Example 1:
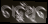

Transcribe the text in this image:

ଚାହୁଁଥିବ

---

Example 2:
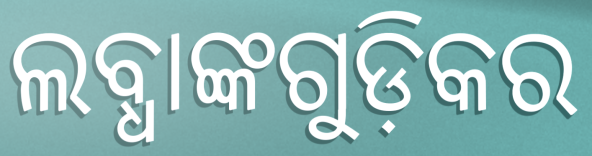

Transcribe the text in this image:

ଲବ୍ଧାଙ୍କଗୁଡ଼ିକର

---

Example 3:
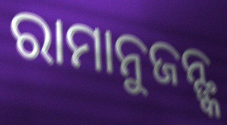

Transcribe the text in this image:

ରାମାନୁଜନ୍ଙ୍କ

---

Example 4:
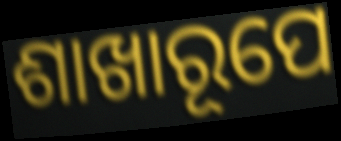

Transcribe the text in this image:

ଶାଖାରୂପେ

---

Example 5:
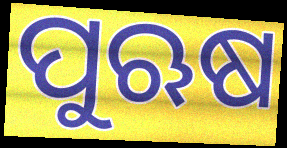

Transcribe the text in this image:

ପୁଋଷ